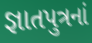
જ્ઞાતપુત્રનાં